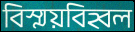
বিস্ময়বিহ্বল